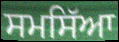
ਸਮਸਿੱਆ